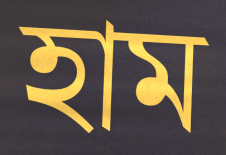
হাম